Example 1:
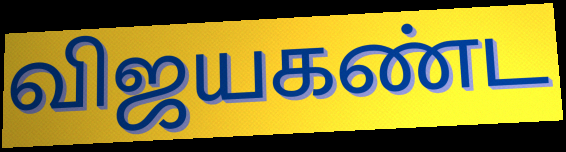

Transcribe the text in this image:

விஜயகண்ட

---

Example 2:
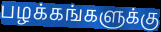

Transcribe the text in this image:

பழக்கங்களுக்கு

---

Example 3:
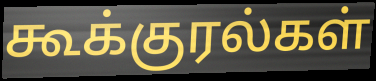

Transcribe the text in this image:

கூக்குரல்கள்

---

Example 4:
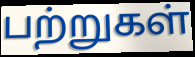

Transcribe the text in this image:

பற்றுகள்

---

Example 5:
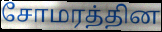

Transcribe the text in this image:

சோமரத்தின